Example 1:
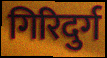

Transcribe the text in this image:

गिरिदुर्ग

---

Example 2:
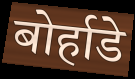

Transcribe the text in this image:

बोर्हाडे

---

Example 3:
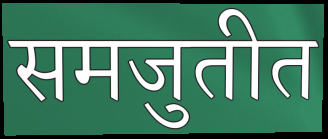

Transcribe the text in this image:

समजुतीत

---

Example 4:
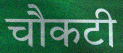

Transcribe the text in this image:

चौकटी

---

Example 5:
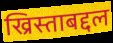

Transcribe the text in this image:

ख्रिस्ताबद्दल